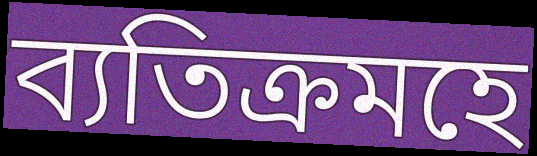
ব্যতিক্ৰমহে